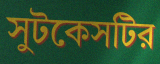
সুটকেসটির